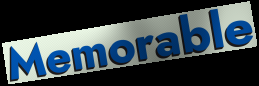
Memorable